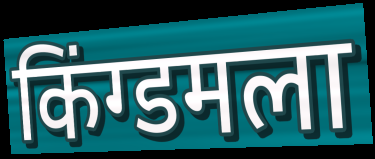
किंग्डमला